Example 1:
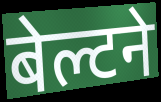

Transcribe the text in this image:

बेल्टने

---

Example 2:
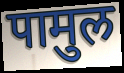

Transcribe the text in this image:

पामुल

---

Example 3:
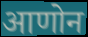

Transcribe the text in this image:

आणोन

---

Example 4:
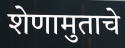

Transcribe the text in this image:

शेणामुताचे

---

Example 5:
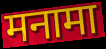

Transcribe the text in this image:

मनामा